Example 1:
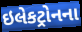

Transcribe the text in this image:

ઇલેકટ્રોનના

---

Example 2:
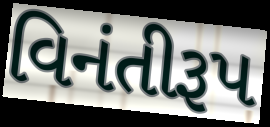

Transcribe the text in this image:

વિનંતીરૂપ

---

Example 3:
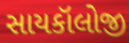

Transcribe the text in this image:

સાયકૉલોજી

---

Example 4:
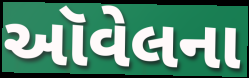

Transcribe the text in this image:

ઑવેલના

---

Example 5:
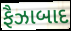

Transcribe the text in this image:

ફૈઝાબાદ